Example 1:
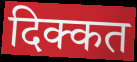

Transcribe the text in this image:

दिक्कत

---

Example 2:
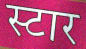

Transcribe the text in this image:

स्टार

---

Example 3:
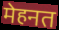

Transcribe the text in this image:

मेहनत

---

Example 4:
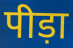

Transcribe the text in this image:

पीड़ा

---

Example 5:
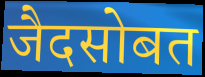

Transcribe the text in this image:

जैदसोबत